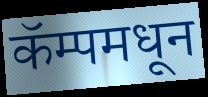
कॅम्पमधून